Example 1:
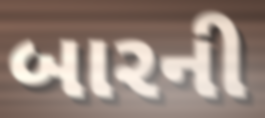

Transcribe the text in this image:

બારની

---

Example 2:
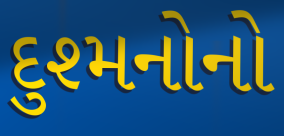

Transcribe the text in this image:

દુશ્મનોનો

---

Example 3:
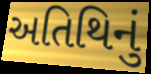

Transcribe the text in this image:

અતિથિનું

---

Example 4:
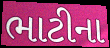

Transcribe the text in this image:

ભાટીના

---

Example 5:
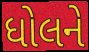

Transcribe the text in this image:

ધોલને